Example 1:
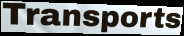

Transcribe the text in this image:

Transports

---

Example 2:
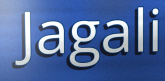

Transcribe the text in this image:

Jagali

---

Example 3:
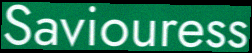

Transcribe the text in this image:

Saviouress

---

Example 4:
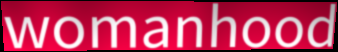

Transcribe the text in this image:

womanhood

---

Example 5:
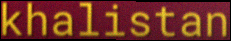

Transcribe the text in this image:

khalistan